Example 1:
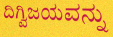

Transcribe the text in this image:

ದಿಗ್ವಿಜಯವನ್ನು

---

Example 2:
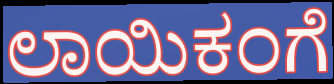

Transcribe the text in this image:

ಲಾಯಿಕಂಗೆ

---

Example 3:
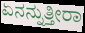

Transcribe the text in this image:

ಏನನ್ನುತ್ತೀರಾ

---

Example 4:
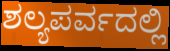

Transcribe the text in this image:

ಶಲ್ಯಪರ್ವದಲ್ಲಿ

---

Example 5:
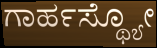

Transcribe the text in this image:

ಗಾರ್ಹಸ್ಥ್ಯೋ